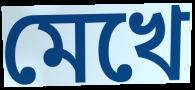
মেখে